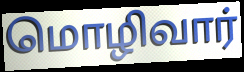
மொழிவார்